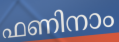
ഫണിനാം